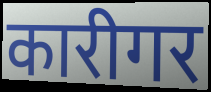
कारीगर